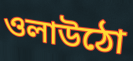
ওলাউঠো